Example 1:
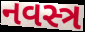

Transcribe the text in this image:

નવસ્ત્ર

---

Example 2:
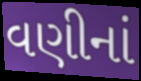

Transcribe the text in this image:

વણીનાં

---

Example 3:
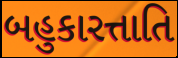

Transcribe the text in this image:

બહુકારત્તાતિ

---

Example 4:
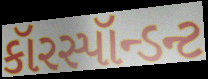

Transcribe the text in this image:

કૉરસ્પૉન્ડન્ટ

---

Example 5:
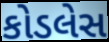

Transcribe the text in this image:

કોડલેસ